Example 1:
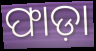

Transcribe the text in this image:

ଫାଡ଼ା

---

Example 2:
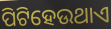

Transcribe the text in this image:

ପିଟିହେଉଥାଏ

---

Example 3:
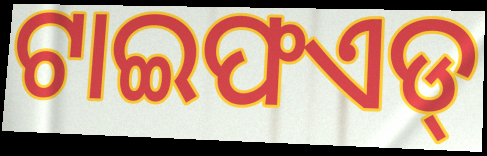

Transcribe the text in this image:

ଟାଇଫଏଡ୍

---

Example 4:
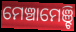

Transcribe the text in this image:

ମେଞ୍ଚାମେଞ୍ଚି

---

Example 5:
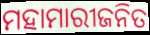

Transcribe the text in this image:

ମହାମାରୀଜନିତ